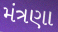
મંત્રણા